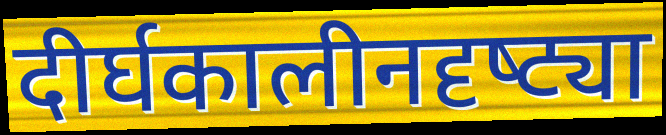
दीर्घकालीनदृष्ट्या